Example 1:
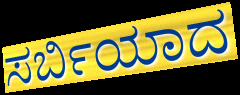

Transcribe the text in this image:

ಸರ್ಬಿಯಾದ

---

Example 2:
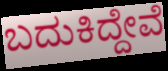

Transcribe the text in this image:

ಬದುಕಿದ್ದೇವೆ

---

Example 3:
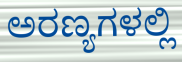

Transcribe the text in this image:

ಅರಣ್ಯಗಳಲ್ಲಿ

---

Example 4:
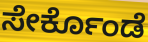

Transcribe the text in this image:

ಸೇರ್ಕೊಂಡೆ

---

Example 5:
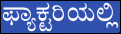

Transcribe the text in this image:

ಫ್ಯಾಕ್ಟರಿಯಲ್ಲಿ